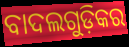
ବାଦଲଗୁଡ଼ିକର